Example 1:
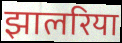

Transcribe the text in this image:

झालरिया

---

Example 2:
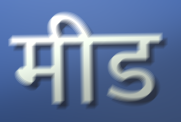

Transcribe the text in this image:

मीड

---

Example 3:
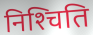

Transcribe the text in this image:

निश्चिति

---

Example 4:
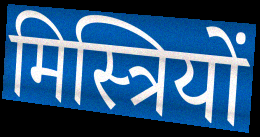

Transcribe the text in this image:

मिस्त्रियों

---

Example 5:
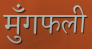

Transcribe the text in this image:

मुँगफली